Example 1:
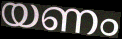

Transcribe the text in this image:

യണം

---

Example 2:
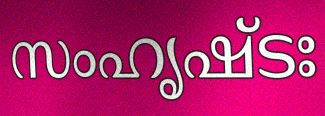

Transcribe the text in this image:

സംഹൃഷ്ടഃ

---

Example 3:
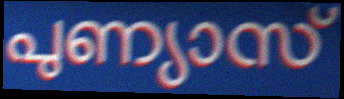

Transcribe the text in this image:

പുണ്യാസ്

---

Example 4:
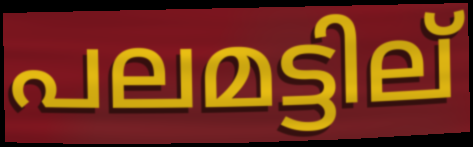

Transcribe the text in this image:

പലമട്ടില്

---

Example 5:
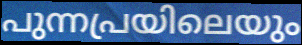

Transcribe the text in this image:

പുന്നപ്രയിലെയും